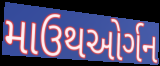
માઉથઓર્ગન